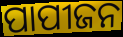
ପାପୀଜନ